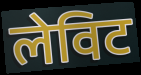
लेविट